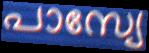
പാസ്യേ